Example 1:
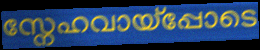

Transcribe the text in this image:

സ്നേഹവായ്പ്പോടെ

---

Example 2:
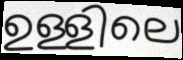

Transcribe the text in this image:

ഉള്ളിലെ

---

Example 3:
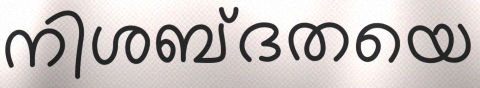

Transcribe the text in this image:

നിശബ്ദതയെ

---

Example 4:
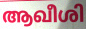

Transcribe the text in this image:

ആഖീശി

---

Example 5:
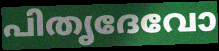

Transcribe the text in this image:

പിതൃദേവോ